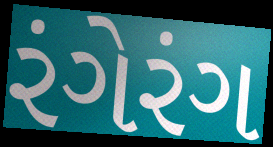
રંગેરંગ